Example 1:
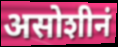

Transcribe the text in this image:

असोशीनं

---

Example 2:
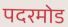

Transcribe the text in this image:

पदरमोड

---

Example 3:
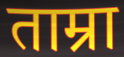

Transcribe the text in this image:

ताम्रा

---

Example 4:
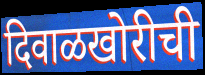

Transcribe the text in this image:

दिवाळखोरीची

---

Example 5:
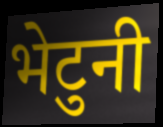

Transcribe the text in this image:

भेटुनी